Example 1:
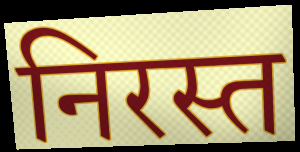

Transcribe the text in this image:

निरस्त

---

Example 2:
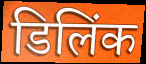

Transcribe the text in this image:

डिलिंक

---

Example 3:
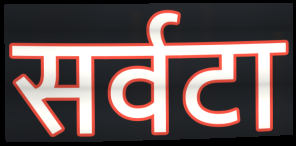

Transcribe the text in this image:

सर्वटा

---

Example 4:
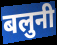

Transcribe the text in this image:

बलुनी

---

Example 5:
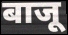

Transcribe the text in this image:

बाजू